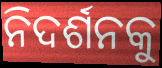
ନିଦର୍ଶନକୁ